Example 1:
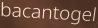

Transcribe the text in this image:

bacantogel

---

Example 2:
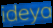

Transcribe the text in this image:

ideya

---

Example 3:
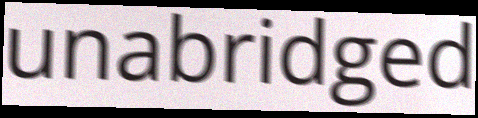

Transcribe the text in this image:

unabridged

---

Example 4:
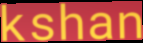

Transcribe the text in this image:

kshan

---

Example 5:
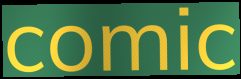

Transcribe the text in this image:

comic